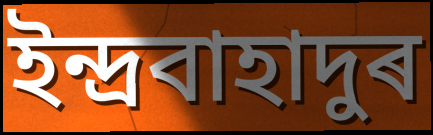
ইন্দ্ৰবাহাদুৰ